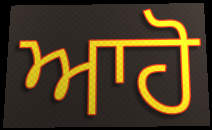
ਆਹੋ